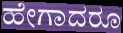
ಹೇಗಾದರೂ